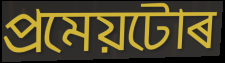
প্ৰমেয়টোৰ